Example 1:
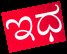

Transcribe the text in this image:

ಇಧ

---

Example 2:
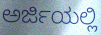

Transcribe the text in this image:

ಅರ್ಜಿಯಲ್ಲಿ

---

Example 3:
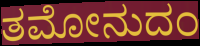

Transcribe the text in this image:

ತಮೋನುದಂ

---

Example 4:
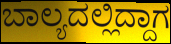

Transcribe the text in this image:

ಬಾಲ್ಯದಲ್ಲಿದ್ದಾಗ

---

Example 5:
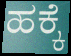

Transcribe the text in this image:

ಹಕ್ಕೆ